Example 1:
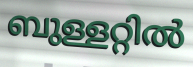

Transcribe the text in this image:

ബുള്ളറ്റിൽ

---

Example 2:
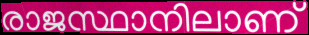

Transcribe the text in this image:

രാജസ്ഥാനിലാണ്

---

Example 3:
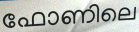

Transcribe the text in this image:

ഫോണിലെ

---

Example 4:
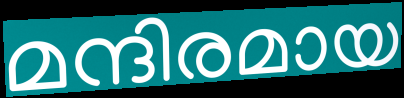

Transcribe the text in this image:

മന്ദിരമായ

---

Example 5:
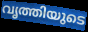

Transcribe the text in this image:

വൃത്തിയുടെ